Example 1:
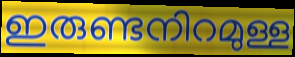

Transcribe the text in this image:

ഇരുണ്ടനിറമുള്ള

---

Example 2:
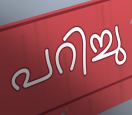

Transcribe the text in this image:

പറിച്ചു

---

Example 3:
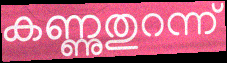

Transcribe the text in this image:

കണ്ണുതുറന്ന്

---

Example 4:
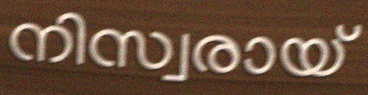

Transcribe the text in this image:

നിസ്വരായ്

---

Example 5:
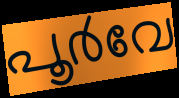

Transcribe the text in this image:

പൂർവേ